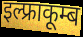
इल्फ्राकूम्ब